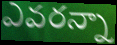
ఎవరన్నా